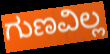
ಗುಣವಿಲ್ಲ